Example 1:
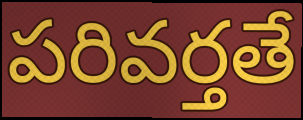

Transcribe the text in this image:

పరివర్తతే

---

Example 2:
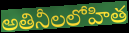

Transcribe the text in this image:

అతినీలలోహిత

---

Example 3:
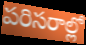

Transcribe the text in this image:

పరిసరాల్లో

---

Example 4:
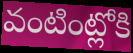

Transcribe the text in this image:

వంటింట్లోకి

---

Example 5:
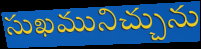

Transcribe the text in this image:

సుఖమునిచ్చును